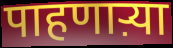
पाहणाऱ्‍या